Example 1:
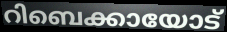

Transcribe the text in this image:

റിബെക്കായോട്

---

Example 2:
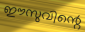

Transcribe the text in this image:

ഈസുവിന്റെ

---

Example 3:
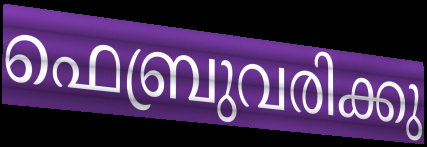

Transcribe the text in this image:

ഫെബ്രുവരിക്കു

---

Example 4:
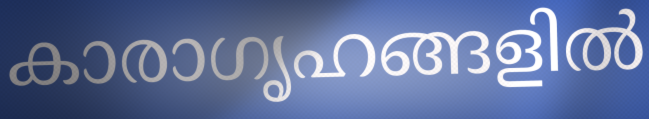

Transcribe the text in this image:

കാരാഗൃഹങ്ങളിൽ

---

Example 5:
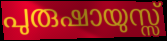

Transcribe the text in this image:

പുരുഷായുസ്സ്